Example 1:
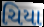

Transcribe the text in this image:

ચિયા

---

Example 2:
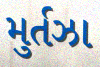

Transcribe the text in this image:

મુર્તઝા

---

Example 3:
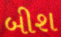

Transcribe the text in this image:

બીશ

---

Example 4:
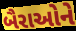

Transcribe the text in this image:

બૈરાઓને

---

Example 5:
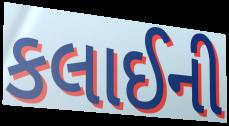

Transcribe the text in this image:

કલાઈની